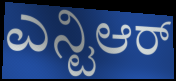
ಎನ್ಟಿಆರ್